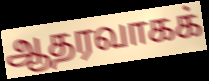
ஆதரவாகக்